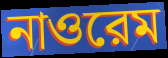
নাওরেম